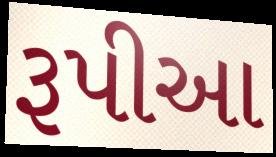
રૂપીઆ